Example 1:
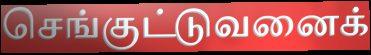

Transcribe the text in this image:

செங்குட்டுவனைக்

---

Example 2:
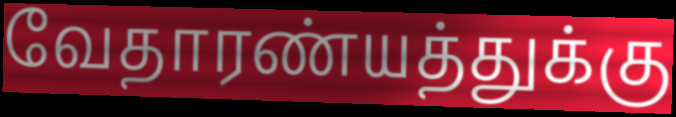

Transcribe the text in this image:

வேதாரண்யத்துக்கு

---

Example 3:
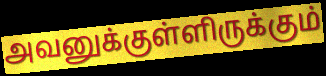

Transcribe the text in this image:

அவனுக்குள்ளிருக்கும்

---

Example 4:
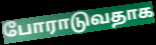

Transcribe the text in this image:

போராடுவதாக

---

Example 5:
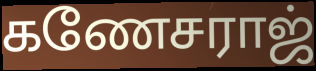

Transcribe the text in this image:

கணேசராஜ்